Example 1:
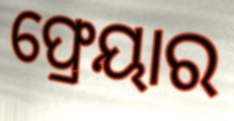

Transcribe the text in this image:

ଫ୍ରେୟାର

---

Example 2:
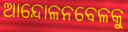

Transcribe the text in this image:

ଆନ୍ଦୋଳନବେଳକୁ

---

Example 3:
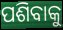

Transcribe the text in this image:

ପଶିବାକୁ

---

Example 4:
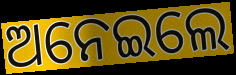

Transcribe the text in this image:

ଅନେଇଲେ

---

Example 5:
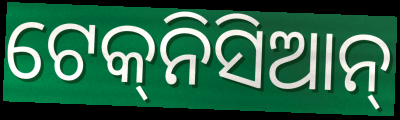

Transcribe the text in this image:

ଟେକ୍‌ନିସିଆନ୍